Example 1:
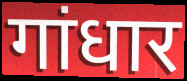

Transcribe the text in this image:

गांधार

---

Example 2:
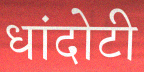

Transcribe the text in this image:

धांदोटी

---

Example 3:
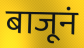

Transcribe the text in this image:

बाजूनं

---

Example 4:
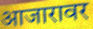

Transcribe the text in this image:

आजारावर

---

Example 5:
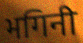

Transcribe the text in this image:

भगिनी